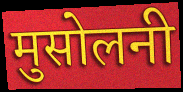
मुसोलनी